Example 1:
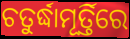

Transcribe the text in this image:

ଚତୁର୍ଦ୍ଧାମୂର୍ତ୍ତିରେ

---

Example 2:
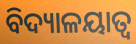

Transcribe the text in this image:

ବିଦ୍ୟାଳୟାତ୍ବ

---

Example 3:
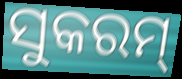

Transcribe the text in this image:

ସୁକରମ୍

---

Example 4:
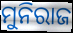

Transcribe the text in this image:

ମୁନିରାଜ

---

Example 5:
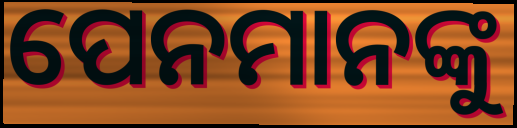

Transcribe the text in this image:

ପେନମାନଙ୍କୁ